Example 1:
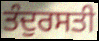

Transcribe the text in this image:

ਤੰਦੁਰਸਤੀ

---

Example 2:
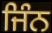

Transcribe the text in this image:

ਜਿੰਨ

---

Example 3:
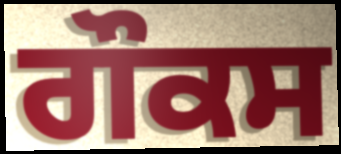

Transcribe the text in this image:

ਗੌਕਸ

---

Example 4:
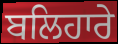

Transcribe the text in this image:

ਬਲਿਹਾਰੇ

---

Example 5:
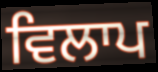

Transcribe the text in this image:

ਵਿਲਾਪ